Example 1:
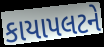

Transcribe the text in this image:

કાયાપલટને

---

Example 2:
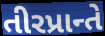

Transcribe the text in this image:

તીરપ્રાન્તે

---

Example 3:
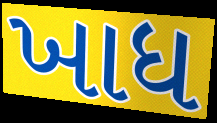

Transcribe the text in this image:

ખાધ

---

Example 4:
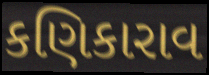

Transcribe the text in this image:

કણિકારાવ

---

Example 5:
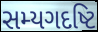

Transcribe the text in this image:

સમ્યગદષ્ટિ